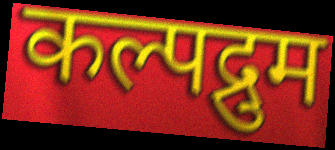
कल्पद्रुम